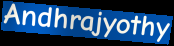
Andhrajyothy